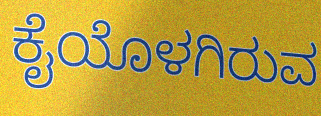
ಕೈಯೊಳಗಿರುವ